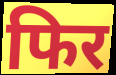
फिर